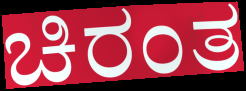
ಚಿರಂತ